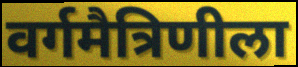
वर्गमैत्रिणीला